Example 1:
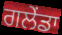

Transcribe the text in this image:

ਗਲੇਂਡਾ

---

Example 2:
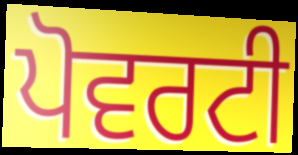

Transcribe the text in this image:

ਪੋਵਰਟੀ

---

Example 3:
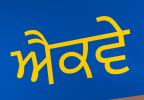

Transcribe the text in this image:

ਐਕਵੇ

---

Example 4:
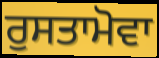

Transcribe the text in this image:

ਰੁਸਤਾਮੋਵਾ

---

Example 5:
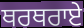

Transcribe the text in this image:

ਥਰਥਰਾਏ